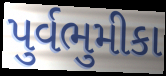
પુર્વભુમીકા